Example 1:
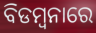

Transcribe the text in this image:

ବିଡମ୍ବନାରେ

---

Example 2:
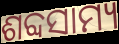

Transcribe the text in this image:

ଶବ୍ଦସାମ୍ୟ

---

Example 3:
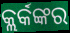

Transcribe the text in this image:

କ୍ଲର୍କଙ୍କର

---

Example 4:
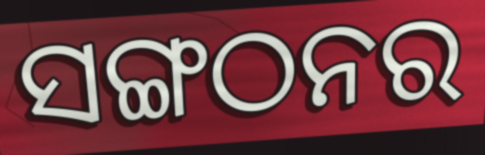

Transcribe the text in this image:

ସଙ୍ଗଠନର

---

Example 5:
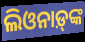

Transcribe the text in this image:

ଲିଓନାଡ଼୍‌ଙ୍କ